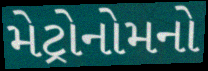
મેટ્રોનોમનો